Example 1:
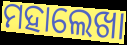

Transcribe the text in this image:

ମହାଲେଖା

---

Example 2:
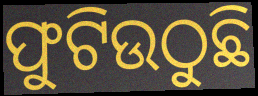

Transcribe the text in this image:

ଫୁଟିଉଠୁଛି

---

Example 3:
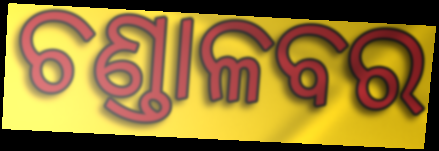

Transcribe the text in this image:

ଚଣ୍ଡାଳବର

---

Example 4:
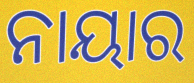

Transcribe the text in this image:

ନାୟାର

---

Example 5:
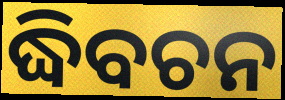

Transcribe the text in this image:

ଦ୍ଧିବଚନ